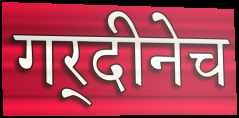
गर्दीनेच